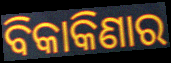
ବିକାକିଣାର